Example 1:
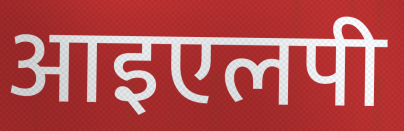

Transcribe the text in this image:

आइएलपी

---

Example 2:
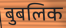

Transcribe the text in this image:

बुबलिक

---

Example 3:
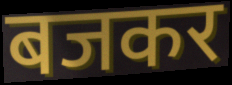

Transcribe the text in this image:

बजकर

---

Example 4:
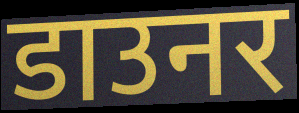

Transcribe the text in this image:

डाउनर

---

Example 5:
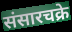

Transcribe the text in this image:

संसारचक्रे